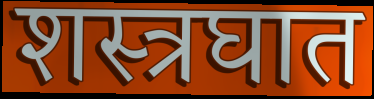
शस्त्रघात